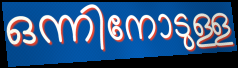
ഒന്നിനോടുള്ള